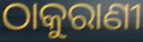
ଠାକୁରାଣୀ